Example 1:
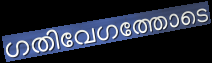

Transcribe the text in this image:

ഗതിവേഗത്തോടെ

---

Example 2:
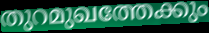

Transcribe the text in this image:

തുറമുഖത്തേക്കും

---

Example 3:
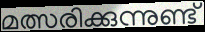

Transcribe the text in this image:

മത്സരിക്കുന്നുണ്ട്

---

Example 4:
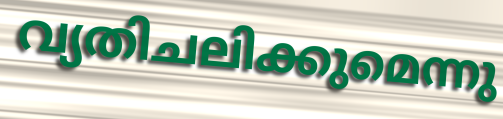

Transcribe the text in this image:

വ്യതിചലിക്കുമെന്നു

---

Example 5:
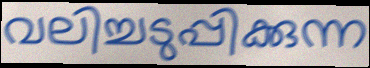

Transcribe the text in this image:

വലിച്ചടുപ്പിക്കുന്ന